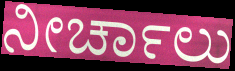
ನೀರ್ಚಾಲು